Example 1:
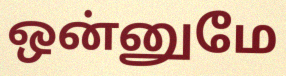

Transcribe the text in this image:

ஒன்னுமே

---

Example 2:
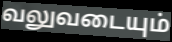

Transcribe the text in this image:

வலுவடையும்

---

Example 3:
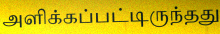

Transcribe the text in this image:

அளிக்கப்பட்டிருந்தது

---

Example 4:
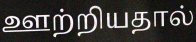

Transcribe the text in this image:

ஊற்றியதால்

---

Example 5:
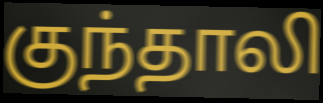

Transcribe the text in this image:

குந்தாலி